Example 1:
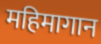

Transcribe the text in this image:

महिमागान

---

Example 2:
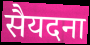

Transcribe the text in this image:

सैयदना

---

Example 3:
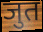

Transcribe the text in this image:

जुत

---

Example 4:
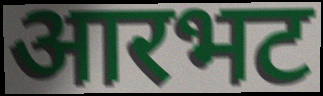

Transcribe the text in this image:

आरभट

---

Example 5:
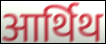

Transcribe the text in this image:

आर्थिथ